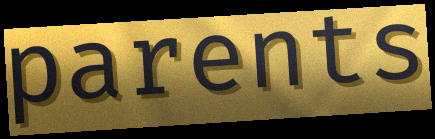
parents